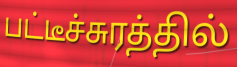
பட்டீச்சுரத்தில்